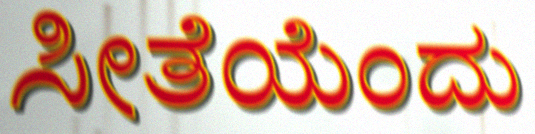
ಸೀತೆಯೆಂದು